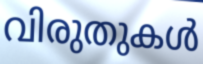
വിരുതുകൾ